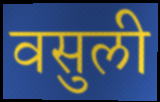
वसुली